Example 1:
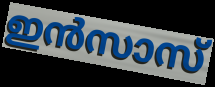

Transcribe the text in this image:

ഇൻസാസ്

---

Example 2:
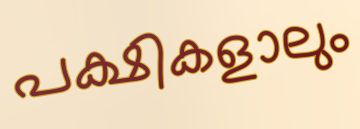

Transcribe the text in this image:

പക്ഷികളാലും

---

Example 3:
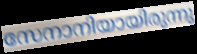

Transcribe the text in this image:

സേനാനിയായിരുന്നു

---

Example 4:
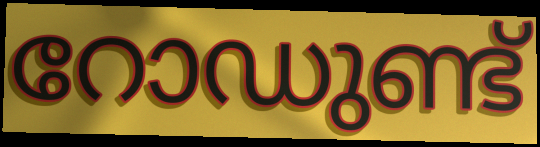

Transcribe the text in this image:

റോഡുണ്ട്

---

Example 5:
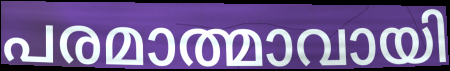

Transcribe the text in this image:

പരമാത്മാവായി